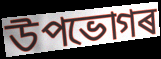
উপভোগৰ